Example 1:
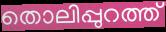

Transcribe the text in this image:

തൊലിപ്പുറത്ത്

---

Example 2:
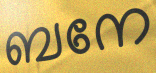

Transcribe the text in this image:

ബനേ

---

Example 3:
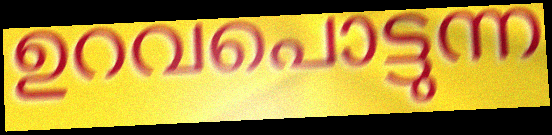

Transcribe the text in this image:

ഉറവപൊട്ടുന്ന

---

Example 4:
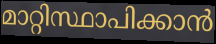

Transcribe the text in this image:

മാറ്റിസ്ഥാപിക്കാൻ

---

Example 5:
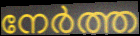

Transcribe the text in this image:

നേർത്ത